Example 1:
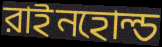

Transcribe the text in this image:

রাইনহোল্ড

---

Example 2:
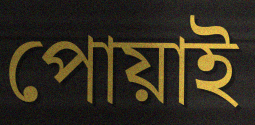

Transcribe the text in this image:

পোয়াই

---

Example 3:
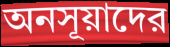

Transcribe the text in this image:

অনসূয়াদের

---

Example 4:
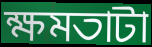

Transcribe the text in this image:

ক্ষমতাটা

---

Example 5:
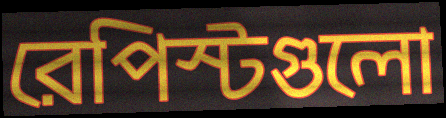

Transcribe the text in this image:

রেপিস্টগুলো